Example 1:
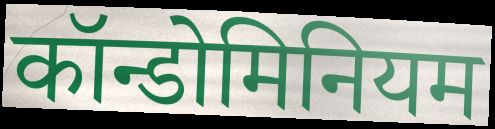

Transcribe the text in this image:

कॉन्डोमिनियम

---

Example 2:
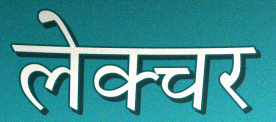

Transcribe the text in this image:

लेक्चर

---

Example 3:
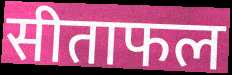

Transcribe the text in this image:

सीताफल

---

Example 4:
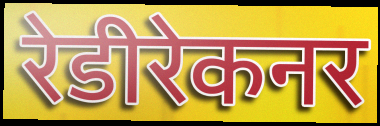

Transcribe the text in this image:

रेडीरेकनर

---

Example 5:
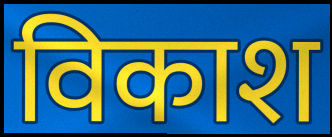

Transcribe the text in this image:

विकाश